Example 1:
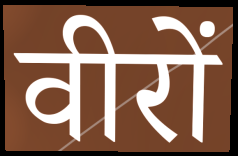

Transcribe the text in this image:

वीरों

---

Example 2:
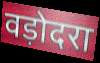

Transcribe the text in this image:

वड़ोदरा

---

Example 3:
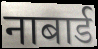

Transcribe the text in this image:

नाबार्ड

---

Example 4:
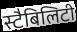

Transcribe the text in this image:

स्टैबिलिटी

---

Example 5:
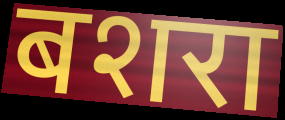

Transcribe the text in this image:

बशरा